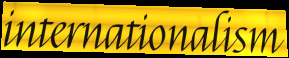
internationalism